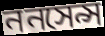
ননসেন্স